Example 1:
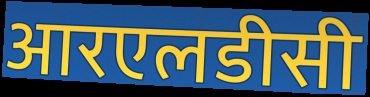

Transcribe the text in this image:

आरएलडीसी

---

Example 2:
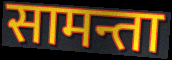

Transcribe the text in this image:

सामन्ता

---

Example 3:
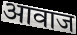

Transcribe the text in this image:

आवाज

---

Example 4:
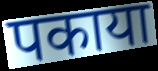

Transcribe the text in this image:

पकाया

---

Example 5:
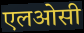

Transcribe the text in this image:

एलओसी